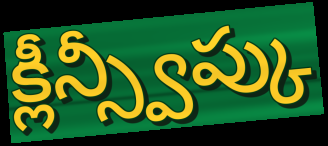
క్లీన్స్వీప్కు